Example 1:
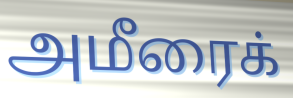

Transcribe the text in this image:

அமீரைக்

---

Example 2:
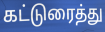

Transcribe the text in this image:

கட்டுரைத்து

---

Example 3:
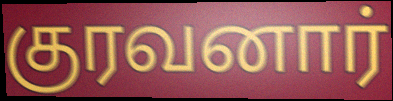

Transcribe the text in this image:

குரவனார்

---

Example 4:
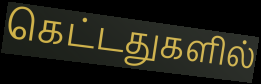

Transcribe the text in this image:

கெட்டதுகளில்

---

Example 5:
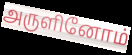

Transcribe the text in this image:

அருளினோம்